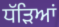
ਧੱੜਿਆਂ